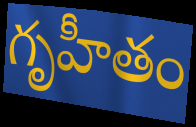
గృహీతం